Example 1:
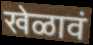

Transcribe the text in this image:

खेळावं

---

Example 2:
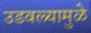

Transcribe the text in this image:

उडवल्यामुळे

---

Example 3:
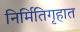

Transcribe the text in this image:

निर्मितिगृहात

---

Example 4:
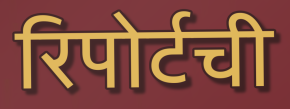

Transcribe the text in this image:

रिपोर्टची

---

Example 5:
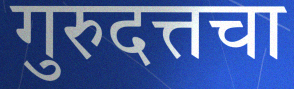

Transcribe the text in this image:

गुरुदत्तचा